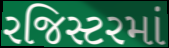
રજિસ્ટરમાં